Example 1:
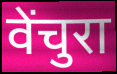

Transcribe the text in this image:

वेंचुरा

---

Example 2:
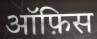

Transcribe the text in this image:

ऑफ़िस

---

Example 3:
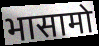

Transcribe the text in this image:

भासामो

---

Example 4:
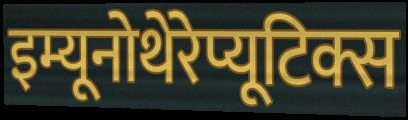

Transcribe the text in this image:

इम्यूनोथेरेप्यूटिक्स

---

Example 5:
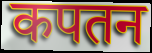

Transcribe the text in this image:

कपतन